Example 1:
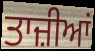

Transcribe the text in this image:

ਤਾਜ਼ੀਆਂ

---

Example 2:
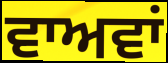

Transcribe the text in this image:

ਵਾਅਵਾਂ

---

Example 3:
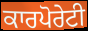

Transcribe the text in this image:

ਕਾਰਪੋਰੇਟੀ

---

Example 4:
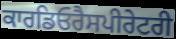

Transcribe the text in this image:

ਕਾਰਡਿਓਰੈਸਪੀਰੇਟਰੀ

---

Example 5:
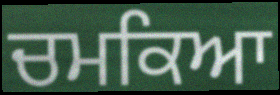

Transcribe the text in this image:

ਚਮਕਿਆ